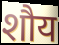
शौय